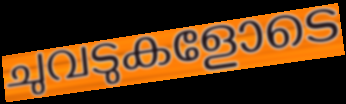
ചുവടുകളോടെ